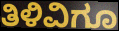
ತಿಳಿವಿಗೂ